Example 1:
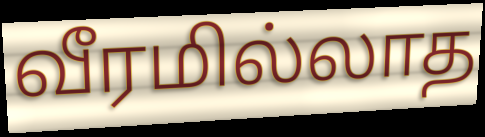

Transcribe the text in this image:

வீரமில்லாத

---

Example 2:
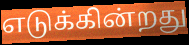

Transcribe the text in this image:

எடுக்கின்றது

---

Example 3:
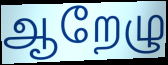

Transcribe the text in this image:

ஆறேழு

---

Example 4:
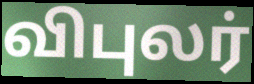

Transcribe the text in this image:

விபுலர்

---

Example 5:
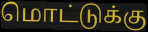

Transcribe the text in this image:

மொட்டுக்கு